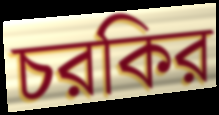
চরকির